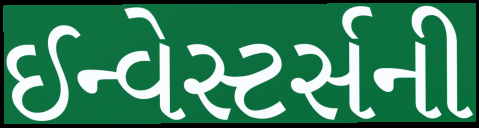
ઈન્વેસ્ટર્સની